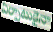
ఏర్పాటుకైనా